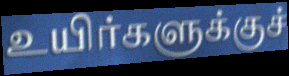
உயிர்களுக்குச்